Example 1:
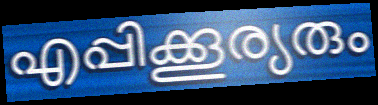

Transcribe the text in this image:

എപ്പിക്കൂര്യരും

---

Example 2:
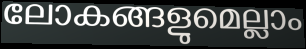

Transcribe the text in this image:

ലോകങ്ങളുമെല്ലാം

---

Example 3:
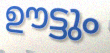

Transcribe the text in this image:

ഊട്ടും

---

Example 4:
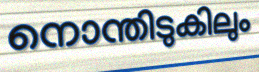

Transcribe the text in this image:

നൊന്തിടുകിലും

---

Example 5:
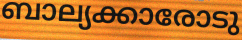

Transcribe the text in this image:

ബാല്യക്കാരോടു